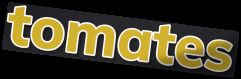
tomates